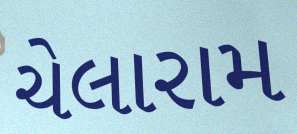
ચેલારામ